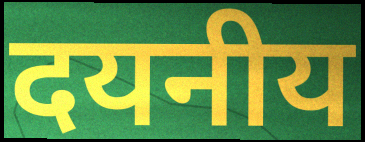
दयनीय